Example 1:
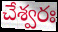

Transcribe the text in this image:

చేశ్వరః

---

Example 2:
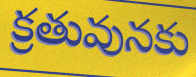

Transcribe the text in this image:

క్రతువునకు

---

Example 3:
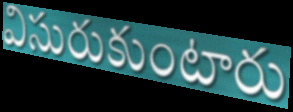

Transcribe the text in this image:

విసురుకుంటారు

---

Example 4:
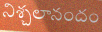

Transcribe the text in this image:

నిశ్చలానందం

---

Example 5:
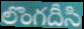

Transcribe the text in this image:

లొంగదీసి